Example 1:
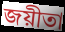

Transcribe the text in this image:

জয়ীতা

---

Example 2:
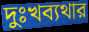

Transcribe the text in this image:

দুঃখব্যথার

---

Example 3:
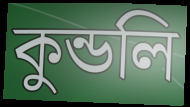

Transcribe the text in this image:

কুন্ডলি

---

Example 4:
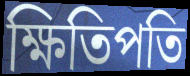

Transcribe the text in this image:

ক্ষিতিপতি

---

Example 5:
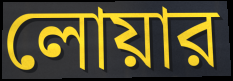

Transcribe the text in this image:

লোয়ার